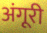
अंगूरी